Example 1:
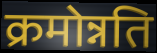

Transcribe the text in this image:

क्रमोन्नति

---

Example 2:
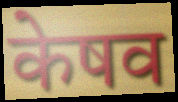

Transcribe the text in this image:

केषव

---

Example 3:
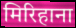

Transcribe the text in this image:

मिरिहाना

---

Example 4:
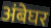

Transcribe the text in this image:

अंबेघर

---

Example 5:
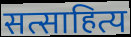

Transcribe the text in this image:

सत्साहित्य